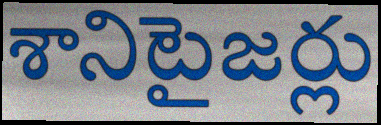
శానిటైజర్లు